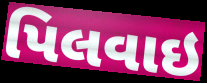
પિલવાઇ